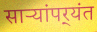
साऱ्यांपर्यंत